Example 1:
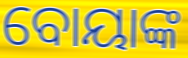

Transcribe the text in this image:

ବୋୟାଙ୍କ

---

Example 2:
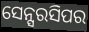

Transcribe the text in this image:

ସେନ୍ସରସିପର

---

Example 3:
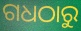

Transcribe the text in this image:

ଗଧଠାରୁ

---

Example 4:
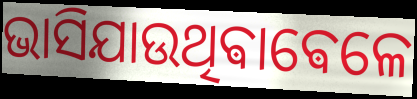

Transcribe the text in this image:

ଭାସିଯାଉଥିଵାଵେଳେ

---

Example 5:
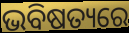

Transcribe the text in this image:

ଭବିଷତ୍ୟରେ